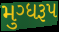
મુગ્ધરૂપ